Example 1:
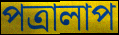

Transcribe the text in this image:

পত্ৰালাপ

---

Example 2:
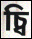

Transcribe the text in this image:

চ্বি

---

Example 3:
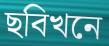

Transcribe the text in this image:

ছবিখনে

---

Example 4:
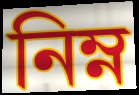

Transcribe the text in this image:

নিম্ন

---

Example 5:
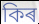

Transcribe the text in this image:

কিৰ